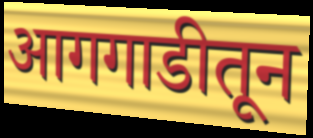
आगगाडीतून